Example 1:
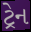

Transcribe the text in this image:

ટ્રેન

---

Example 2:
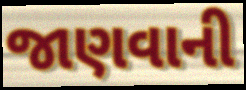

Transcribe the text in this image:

જાણવાની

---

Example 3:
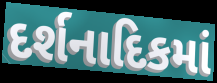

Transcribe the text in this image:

દર્શનાદિકમાં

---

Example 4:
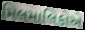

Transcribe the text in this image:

મિલમાલિકોએ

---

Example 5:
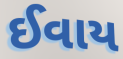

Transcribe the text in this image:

ઈવાય